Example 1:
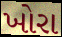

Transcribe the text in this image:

ખોરા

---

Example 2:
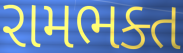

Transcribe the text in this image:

રામભક્ત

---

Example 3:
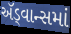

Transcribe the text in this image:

ઍડ્વાન્સમાં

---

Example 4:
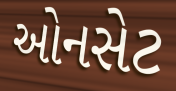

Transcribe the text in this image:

ઓનસેટ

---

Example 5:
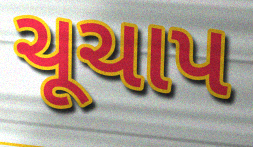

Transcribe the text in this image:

ચૂચાપ